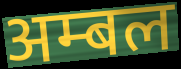
अम्बल